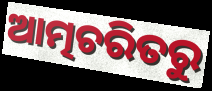
ଆତ୍ମଚରିତରୁ